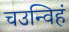
चउन्विहं